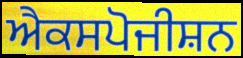
ਐਕਸਪੋਜੀਸ਼ਨ